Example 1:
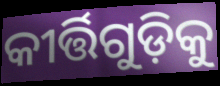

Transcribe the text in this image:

କୀର୍ତ୍ତିଗୁଡ଼ିକୁ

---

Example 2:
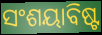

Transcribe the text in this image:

ସଂଶୟାବିଷ୍ଟ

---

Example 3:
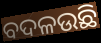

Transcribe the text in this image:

ବଦଳଉଛି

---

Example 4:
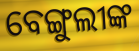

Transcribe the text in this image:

ବେଙ୍ଗୁଲୀଙ୍କ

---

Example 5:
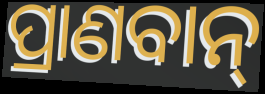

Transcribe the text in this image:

ପ୍ରାଣବାନ୍